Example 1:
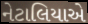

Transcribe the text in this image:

નેટાલિયાએ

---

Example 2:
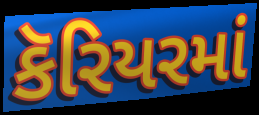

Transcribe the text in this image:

કૅરિયરમાં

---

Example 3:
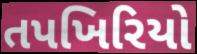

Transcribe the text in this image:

તપખિરિયો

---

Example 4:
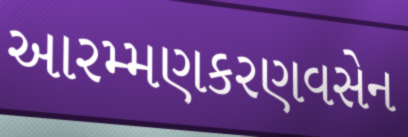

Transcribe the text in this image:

આરમ્મણકરણવસેન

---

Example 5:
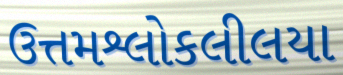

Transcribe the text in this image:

ઉત્તમશ્લોકલીલયા